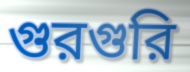
গুরগুরি